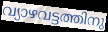
വ്യാഴവട്ടത്തിനു